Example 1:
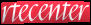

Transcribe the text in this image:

rtecenter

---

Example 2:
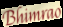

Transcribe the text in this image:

Bhimrao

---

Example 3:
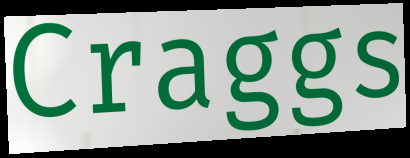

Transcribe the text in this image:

Craggs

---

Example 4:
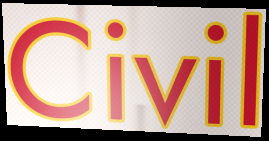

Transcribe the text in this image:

Civil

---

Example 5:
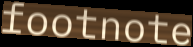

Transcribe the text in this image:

footnote